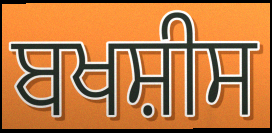
ਬਖਸ਼ੀਸ